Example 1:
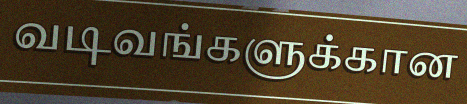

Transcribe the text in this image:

வடிவங்களுக்கான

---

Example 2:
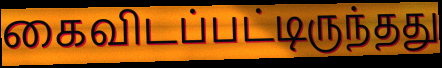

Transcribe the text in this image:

கைவிடப்பட்டிருந்தது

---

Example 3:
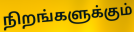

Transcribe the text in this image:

நிறங்களுக்கும்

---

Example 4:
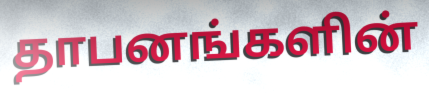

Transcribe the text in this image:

தாபனங்களின்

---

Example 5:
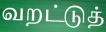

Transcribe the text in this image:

வறட்டுத்